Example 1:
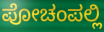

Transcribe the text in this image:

ಪೋಚಂಪಲ್ಲಿ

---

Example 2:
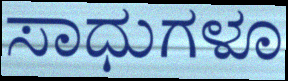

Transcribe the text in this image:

ಸಾಧುಗಳೂ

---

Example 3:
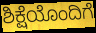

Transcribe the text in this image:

ಶಿಕ್ಷೆಯೊಂದಿಗೆ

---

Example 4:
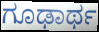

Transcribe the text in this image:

ಗೂಢಾರ್ಥ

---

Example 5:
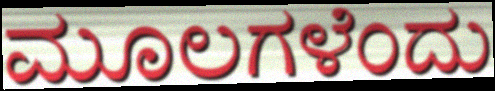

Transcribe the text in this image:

ಮೂಲಗಳೆಂದು